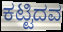
ಕಟ್ಟಿದವ